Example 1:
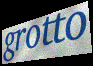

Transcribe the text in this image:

grotto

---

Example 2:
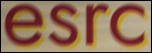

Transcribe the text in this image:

esrc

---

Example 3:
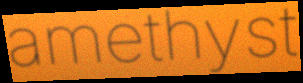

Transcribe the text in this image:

amethyst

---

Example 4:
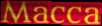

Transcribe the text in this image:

Macca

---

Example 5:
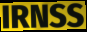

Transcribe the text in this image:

IRNSS